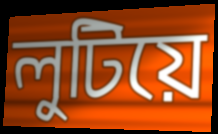
লুটিয়ে